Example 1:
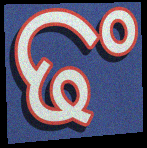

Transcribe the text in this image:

ଢଂ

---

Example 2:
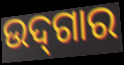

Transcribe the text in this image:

ଉଦ୍‌ଗାର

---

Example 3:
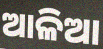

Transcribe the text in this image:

ଆଳିଆ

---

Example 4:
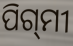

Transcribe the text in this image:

ପିଗ୍‌ମୀ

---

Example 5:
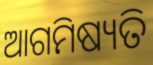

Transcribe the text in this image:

ଆଗମିଷ୍ୟତି